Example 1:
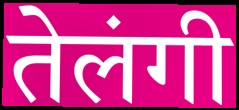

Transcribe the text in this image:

तेलंगी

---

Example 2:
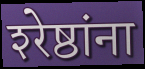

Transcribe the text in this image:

श्रेष्ठांना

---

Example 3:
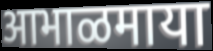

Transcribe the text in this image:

आभाळमाया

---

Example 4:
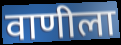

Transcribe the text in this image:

वाणीला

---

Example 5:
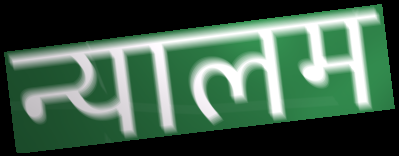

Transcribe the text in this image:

न्यालम